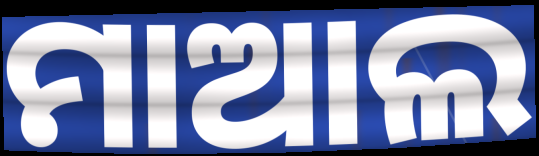
ମାଆଲ